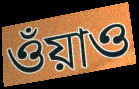
ওঁয়াও